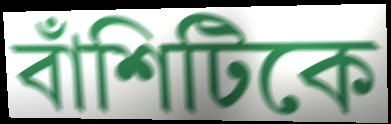
বাঁশিটিকে